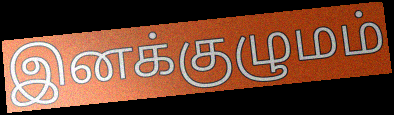
இனக்குழுமம்